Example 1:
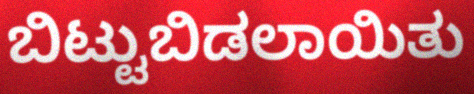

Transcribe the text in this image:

ಬಿಟ್ಟುಬಿಡಲಾಯಿತು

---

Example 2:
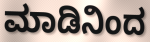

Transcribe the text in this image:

ಮಾಡಿನಿಂದ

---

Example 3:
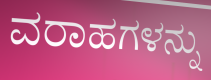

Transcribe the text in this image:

ವರಾಹಗಳನ್ನು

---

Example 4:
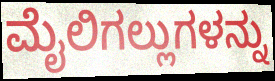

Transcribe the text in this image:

ಮೈಲಿಗಲ್ಲುಗಳನ್ನು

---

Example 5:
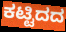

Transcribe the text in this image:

ಕಟ್ಟಿದದ